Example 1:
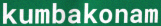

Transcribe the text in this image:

kumbakonam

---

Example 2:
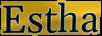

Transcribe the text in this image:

Estha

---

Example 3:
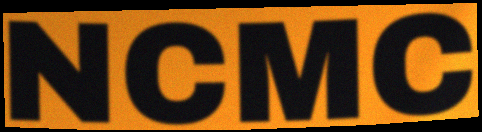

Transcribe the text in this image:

NCMC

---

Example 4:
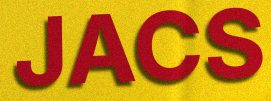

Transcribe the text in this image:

JACS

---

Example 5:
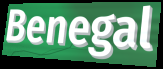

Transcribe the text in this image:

Benegal